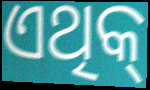
ଏଥିକ୍